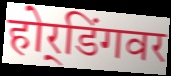
होर्डिंगवर